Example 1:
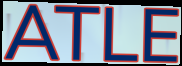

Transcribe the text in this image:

ATLE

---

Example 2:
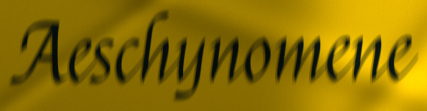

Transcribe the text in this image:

Aeschynomene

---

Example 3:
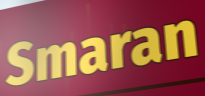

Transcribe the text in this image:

Smaran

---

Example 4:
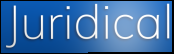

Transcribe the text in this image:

Juridical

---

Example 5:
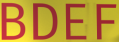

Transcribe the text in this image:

BDEF